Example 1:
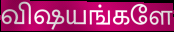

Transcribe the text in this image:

விஷயங்களே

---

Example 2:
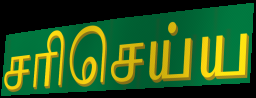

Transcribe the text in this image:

சரிசெய்ய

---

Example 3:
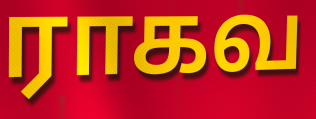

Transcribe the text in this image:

ராகவ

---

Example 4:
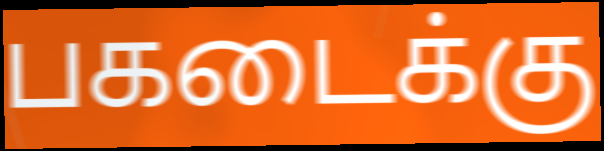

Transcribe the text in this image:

பகடைக்கு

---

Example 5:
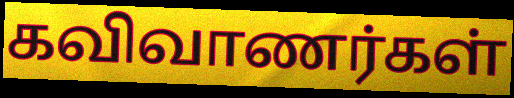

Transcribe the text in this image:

கவிவாணர்கள்